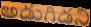
అడుగిడని